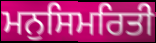
ਮਨੁਸਿਮਰਿਤੀ